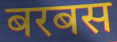
बरबस